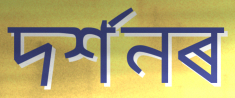
দৰ্শনৰ